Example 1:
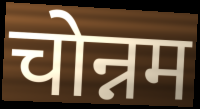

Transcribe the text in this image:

चोन्नम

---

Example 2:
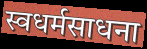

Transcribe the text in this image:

स्वधर्मसाधना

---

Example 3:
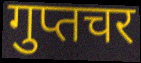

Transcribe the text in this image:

गुप्तचर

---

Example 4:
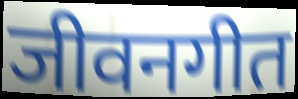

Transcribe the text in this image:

जीवनगीत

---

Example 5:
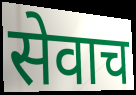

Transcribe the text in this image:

सेवाच